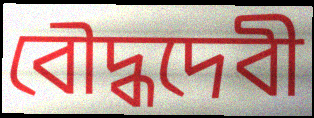
বৌদ্ধদেবী